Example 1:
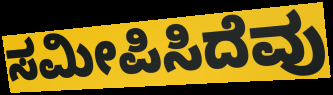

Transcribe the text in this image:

ಸಮೀಪಿಸಿದೆವು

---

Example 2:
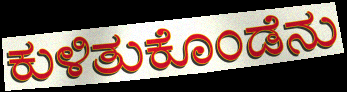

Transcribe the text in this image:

ಕುಳಿತುಕೊಂಡೆನು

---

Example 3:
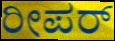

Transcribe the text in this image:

ರೀಪರ್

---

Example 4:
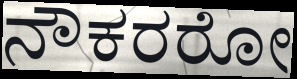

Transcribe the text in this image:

ನೌಕರರೋ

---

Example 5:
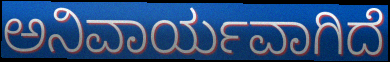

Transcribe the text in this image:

ಅನಿವಾರ್ಯವಾಗಿದೆ